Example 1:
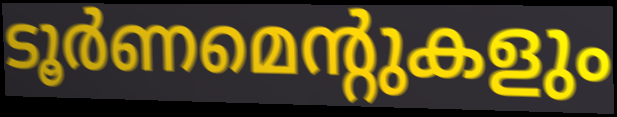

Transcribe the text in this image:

ടൂർണമെന്റുകളും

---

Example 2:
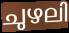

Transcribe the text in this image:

ചുഴലി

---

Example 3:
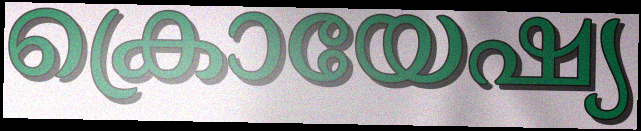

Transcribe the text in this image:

ക്രൊയേഷ്യ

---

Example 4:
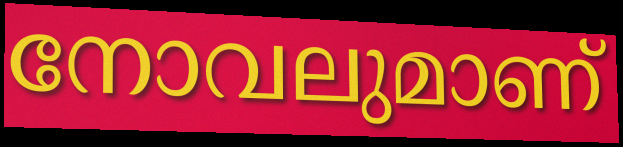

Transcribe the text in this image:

നോവലുമാണ്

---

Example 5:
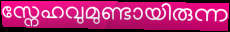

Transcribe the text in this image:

സ്നേഹവുമുണ്ടായിരുന്ന